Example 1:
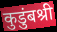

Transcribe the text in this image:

कुडुंबश्री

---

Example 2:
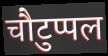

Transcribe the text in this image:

चौटुप्पल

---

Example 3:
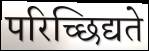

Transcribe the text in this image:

परिच्छिद्यते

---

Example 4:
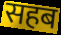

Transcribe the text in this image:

सहब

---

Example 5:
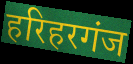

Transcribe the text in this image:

हरिहरगंज